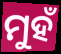
ମୁହଁ